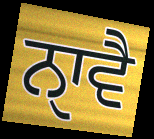
ਨੑਾਵੈ